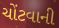
ચોંટવાની